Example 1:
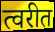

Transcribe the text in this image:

त्वरीत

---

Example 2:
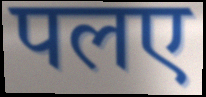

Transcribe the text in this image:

पलए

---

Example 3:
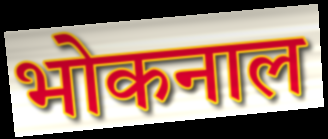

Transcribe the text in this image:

भोकनाल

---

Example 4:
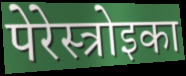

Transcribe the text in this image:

पेरेस्त्रोइका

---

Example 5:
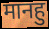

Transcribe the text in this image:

मानहु